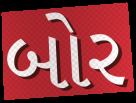
બોર